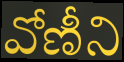
వోణీని